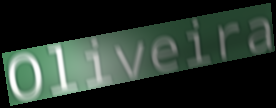
Oliveira